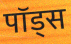
पॉड्स